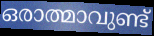
ഒരാത്മാവുണ്ട്